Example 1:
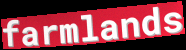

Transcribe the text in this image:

farmlands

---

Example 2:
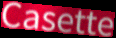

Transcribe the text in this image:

Casette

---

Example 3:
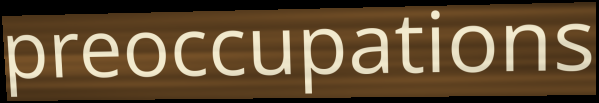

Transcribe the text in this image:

preoccupations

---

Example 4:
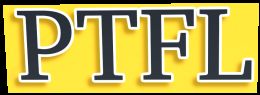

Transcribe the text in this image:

PTFL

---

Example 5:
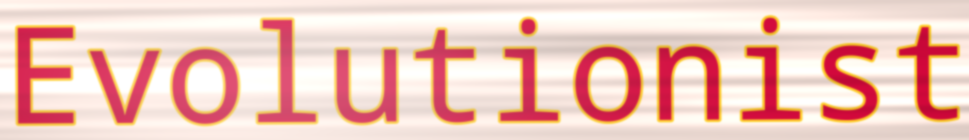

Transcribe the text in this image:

Evolutionist